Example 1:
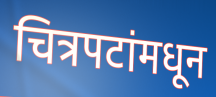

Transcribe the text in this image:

चित्रपटांमधून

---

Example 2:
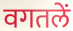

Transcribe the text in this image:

वगतलें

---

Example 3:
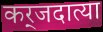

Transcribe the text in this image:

कर्जदात्या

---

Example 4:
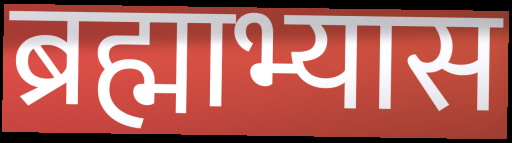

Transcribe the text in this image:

ब्रह्माभ्यास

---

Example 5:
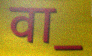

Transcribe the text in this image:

वा॒